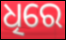
ଧିରେ